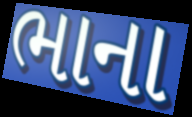
ભાના